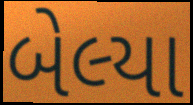
બેલ્યા